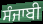
ਸੰਜਾਬੀ